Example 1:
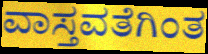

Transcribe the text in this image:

ವಾಸ್ತವತೆಗಿಂತ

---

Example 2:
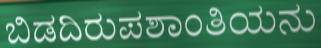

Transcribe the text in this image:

ಬಿಡದಿರುಪಶಾಂತಿಯನು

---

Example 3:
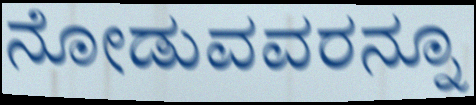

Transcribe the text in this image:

ನೋಡುವವರನ್ನೂ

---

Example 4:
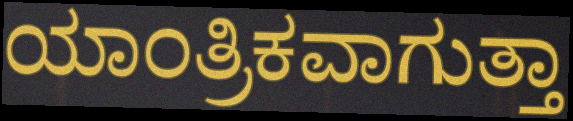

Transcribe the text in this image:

ಯಾಂತ್ರಿಕವಾಗುತ್ತಾ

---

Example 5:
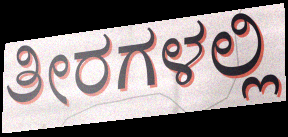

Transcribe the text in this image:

ತೀರಗಳಲ್ಲಿ